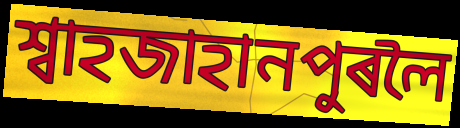
শ্বাহজাহানপুৰলৈ